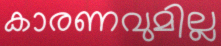
കാരണവുമില്ല